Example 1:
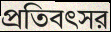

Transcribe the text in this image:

প্রতিবৎসর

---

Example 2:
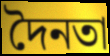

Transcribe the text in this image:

দৈনতা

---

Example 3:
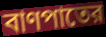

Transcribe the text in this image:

বাণপাতের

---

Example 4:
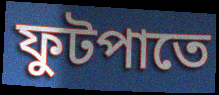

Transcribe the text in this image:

ফুটপাতে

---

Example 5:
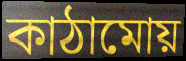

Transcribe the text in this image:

কাঠামোয়